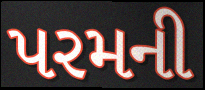
પરમની